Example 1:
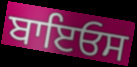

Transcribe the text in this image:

ਬਾਇਓਸ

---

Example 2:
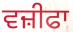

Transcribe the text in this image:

ਵਜ਼ੀਫਾ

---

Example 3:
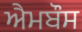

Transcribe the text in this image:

ਐਮਬੌਸ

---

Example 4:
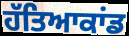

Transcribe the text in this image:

ਹੱਤਿਆਕਾਂਡ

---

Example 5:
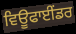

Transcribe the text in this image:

ਵਿਊਫਾਈਂਡਰ